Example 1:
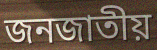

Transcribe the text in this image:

জনজাতীয়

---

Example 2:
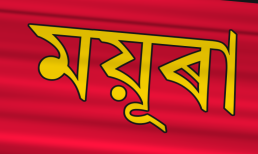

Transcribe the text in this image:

ময়ূৰা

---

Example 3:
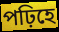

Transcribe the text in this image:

পঢ়িহে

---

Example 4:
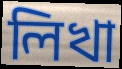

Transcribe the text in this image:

লিখা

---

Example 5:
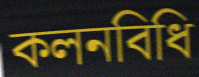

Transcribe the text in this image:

কলনবিধি